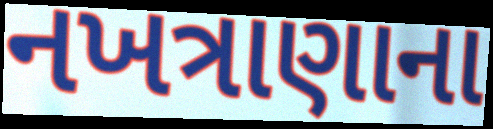
નખત્રાણાના